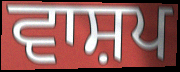
ਵਾਸ਼ਪ